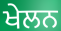
ਖੇਲਨ